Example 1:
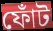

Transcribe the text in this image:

ফোঁট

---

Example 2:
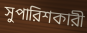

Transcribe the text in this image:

সুপারিশকারী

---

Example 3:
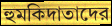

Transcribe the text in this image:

হুমকিদাতাদের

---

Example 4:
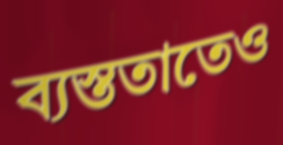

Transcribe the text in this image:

ব্যস্ততাতেও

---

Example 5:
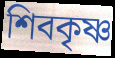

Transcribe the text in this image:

শিবকৃষ্ণ